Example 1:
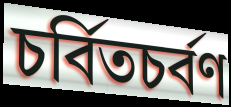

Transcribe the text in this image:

চর্বিতচর্বণ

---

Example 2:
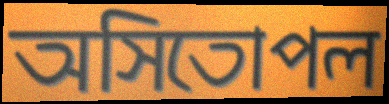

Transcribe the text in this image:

অসিতোপল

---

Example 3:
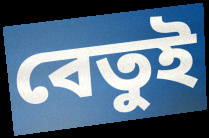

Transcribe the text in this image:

বেতুই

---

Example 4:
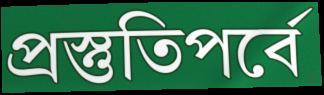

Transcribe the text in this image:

প্রস্তুতিপর্বে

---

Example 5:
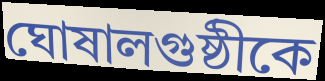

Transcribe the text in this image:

ঘোষালগুষ্ঠীকে